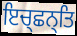
ਇਚ੍ਛਨ੍ਤਿ